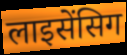
लाइसेंसिग